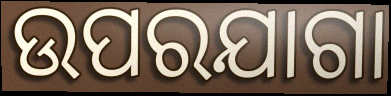
ଉପରଯାଗା